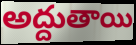
అద్దుతాయి